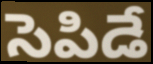
సెపిడే